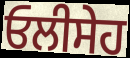
ਓਲੀਸੇਹ